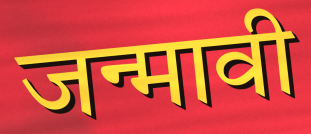
जन्मावी